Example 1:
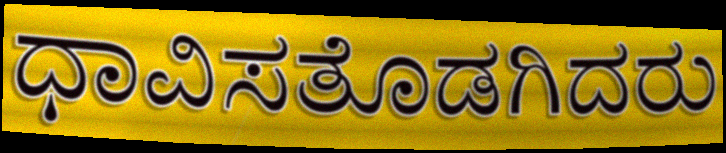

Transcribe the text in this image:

ಧಾವಿಸತೊಡಗಿದರು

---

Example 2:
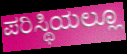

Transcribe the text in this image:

ಪರಿಸ್ಥಿಯಲ್ಲೂ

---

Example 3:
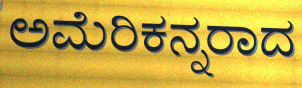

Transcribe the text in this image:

ಅಮೆರಿಕನ್ನರಾದ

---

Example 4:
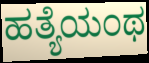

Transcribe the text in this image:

ಹತ್ಯೆಯಂಥ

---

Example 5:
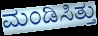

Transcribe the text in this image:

ಮಂಡಿಸಿತ್ತು